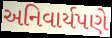
અનિવાર્યપણે